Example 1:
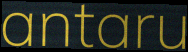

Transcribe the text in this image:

antaru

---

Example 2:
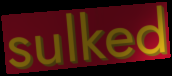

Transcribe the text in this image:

sulked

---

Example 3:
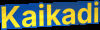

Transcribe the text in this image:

Kaikadi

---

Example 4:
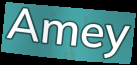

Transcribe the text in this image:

Amey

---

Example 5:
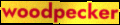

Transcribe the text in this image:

woodpecker